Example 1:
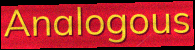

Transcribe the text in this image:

Analogous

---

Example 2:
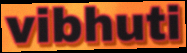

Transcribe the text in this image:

vibhuti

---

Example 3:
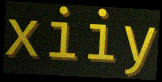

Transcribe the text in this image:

xiiy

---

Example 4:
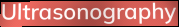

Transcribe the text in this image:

Ultrasonography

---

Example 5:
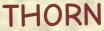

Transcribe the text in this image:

THORN